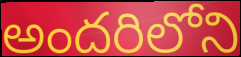
అందరిలోని